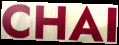
CHAI